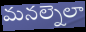
మనల్నెలా